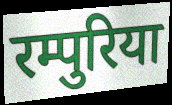
रम्पुरिया